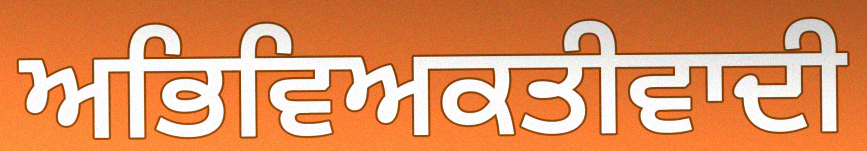
ਅਭਿਵਿਅਕਤੀਵਾਦੀ